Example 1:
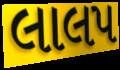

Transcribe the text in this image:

લાલપ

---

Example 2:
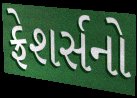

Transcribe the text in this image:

ફ્રેશર્સનો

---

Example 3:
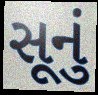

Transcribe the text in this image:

સૂનું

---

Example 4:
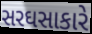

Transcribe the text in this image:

સરઘસાકારે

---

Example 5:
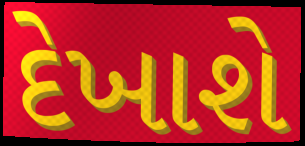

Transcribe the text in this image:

દેખાશે